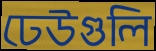
ঢেউগুলি